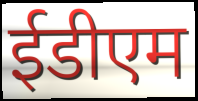
ईडीएम